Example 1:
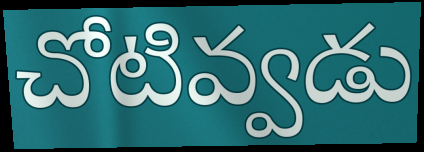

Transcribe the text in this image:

చోటివ్వడు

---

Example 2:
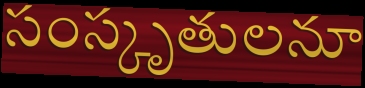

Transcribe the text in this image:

సంస్కృతులనూ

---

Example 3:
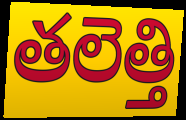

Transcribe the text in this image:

తలెత్తి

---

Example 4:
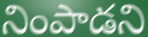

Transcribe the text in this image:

నింపాడని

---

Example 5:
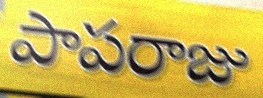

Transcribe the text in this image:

పాపరాజు